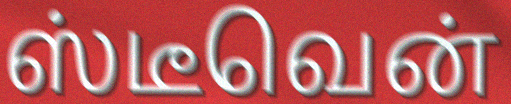
ஸ்டீவென்